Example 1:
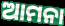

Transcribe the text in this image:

ଆମନା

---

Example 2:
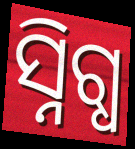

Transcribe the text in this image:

ସ୍ନିଗ୍ଧ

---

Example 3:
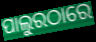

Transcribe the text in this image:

ପାଲୁରଠାରେ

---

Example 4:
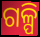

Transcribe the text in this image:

ଗଳ୍ପି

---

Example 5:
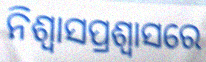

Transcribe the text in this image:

ନିଶ୍ୱାସପ୍ରଶ୍ୱାସରେ